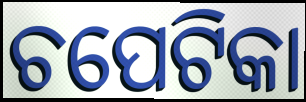
ଚପେଟିକା